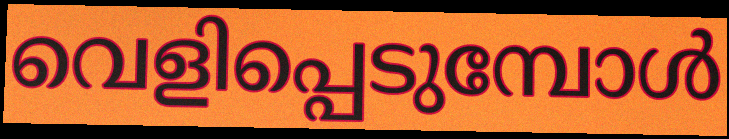
വെളിപ്പെടുമ്പോൾ